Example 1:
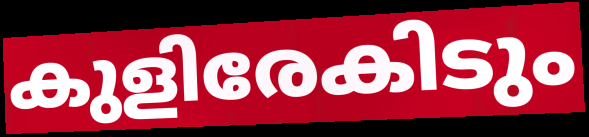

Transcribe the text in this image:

കുളിരേകിടും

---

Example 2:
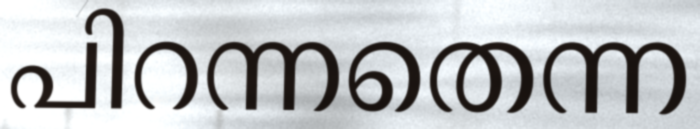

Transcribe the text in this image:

പിറന്നതെന്ന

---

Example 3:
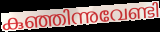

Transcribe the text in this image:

കുഞ്ഞിന്നുവേണ്ടി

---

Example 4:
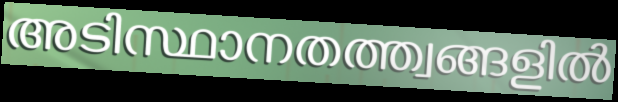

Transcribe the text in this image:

അടിസ്ഥാനതത്ത്വങ്ങളിൽ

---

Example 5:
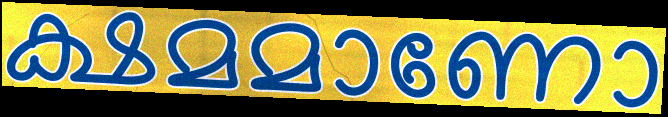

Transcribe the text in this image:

ക്ഷമമാണോ